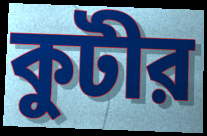
কুটীর